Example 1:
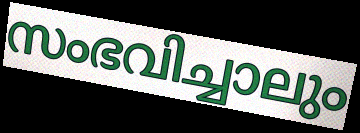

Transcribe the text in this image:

സംഭവിച്ചാലും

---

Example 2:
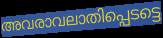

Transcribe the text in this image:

അവരാവലാതിപ്പെടട്ടെ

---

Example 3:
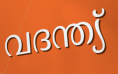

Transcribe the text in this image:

വദന്ത്യ്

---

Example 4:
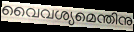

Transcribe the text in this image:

വൈവശ്യമെന്തിനു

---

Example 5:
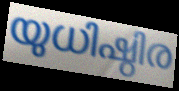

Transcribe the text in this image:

യുധിഷ്ഠിര